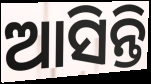
ଆସିନ୍ତି